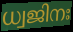
ധ്വജിനഃ